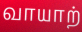
வாயாற்